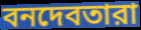
বনদেবতারা